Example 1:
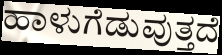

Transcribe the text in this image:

ಹಾಳುಗೆಡುವುತ್ತದೆ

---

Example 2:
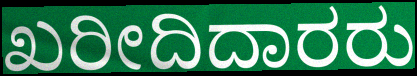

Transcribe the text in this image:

ಖರೀದಿದಾರರು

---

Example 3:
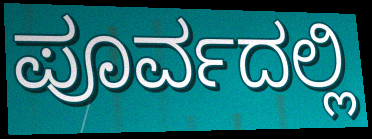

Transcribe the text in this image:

ಪೂರ್ವದಲ್ಲಿ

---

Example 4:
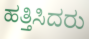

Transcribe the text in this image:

ಹತ್ತಿಸಿದರು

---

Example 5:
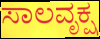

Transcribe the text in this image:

ಸಾಲವೃಕ್ಷ